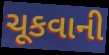
ચૂકવાની